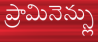
ప్రామినెన్స్లు